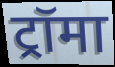
ट्रॉमा